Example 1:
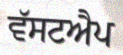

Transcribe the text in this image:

ਵੱਸਟਐਪ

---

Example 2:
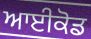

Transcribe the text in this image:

ਆਈਕੋਡ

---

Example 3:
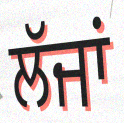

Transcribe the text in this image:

ਲੱਜਾਂ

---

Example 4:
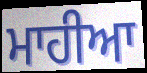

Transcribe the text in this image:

ਮਾਹੀਆ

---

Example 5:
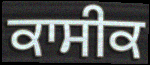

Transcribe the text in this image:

ਕਾਸੀਕ